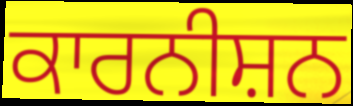
ਕਾਰਨੀਸ਼ਨ